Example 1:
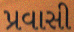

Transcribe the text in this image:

પ્રવાસી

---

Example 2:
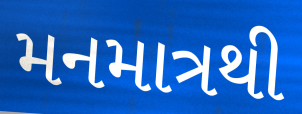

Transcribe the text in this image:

મનમાત્રથી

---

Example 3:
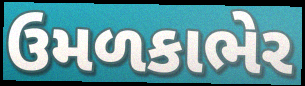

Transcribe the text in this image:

ઉમળકાભેર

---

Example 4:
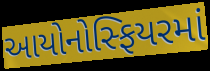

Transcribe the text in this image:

આયોનોસ્ફિયરમાં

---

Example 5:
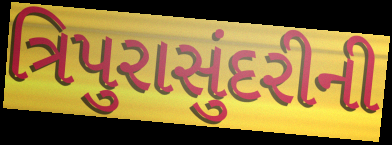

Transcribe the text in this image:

ત્રિપુરાસુંદરીની